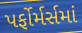
પર્ફોર્મર્સમાં